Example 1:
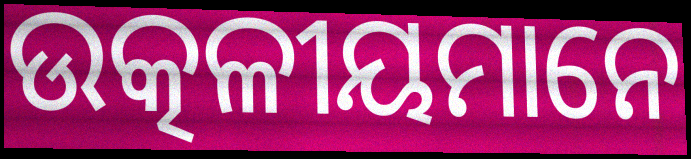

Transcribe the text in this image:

ଉତ୍କଳୀୟମାନେ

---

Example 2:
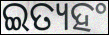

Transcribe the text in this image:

ଇତ୍ୟହଂ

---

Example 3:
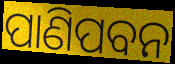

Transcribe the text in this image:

ପାଣିପବନ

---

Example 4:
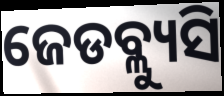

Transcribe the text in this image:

ଜେଡବ୍ଲ୍ୟୁସି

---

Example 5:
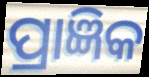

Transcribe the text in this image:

ପ୍ରାଜ୍ଞିକ